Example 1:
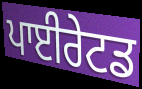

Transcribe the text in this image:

ਪਾਈਰੇਟਡ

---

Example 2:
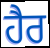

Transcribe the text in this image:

ਹੈਰ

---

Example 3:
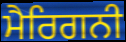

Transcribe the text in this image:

ਮੈਰਿਗਨੀ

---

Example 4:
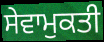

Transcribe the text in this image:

ਸੇਵਾਮੁਕਤੀ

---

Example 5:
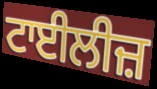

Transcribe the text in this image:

ਟਾਈਲੀਜ਼